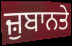
ਜ਼ੁਬਾਨਤੇ